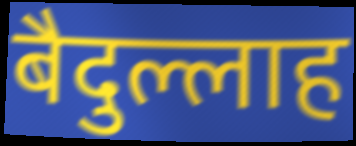
बैदुल्लाह